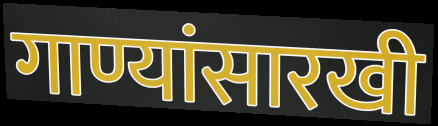
गाण्यांसारखी